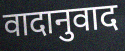
वादानुवाद